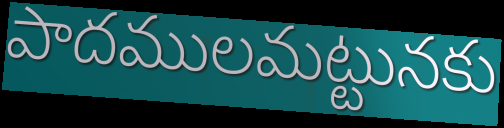
పాదములమట్టునకు